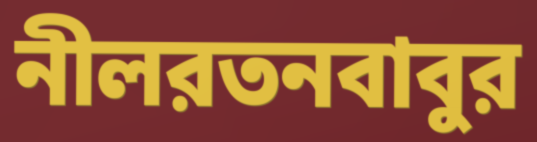
নীলরতনবাবুর